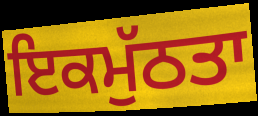
ਇਕਮੁੱਠਤਾ